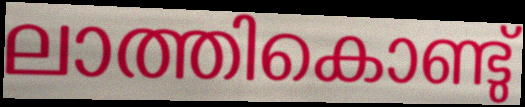
ലാത്തികൊണ്ടു്